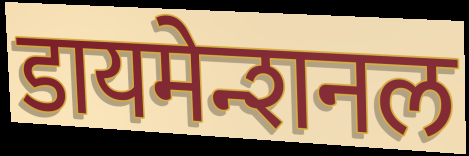
डायमेन्शनल